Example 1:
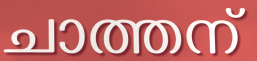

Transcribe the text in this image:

ചാത്തന്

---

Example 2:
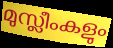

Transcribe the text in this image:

മുസ്ലീംകളും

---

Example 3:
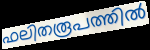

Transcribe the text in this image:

ഫലിതരൂപത്തിൽ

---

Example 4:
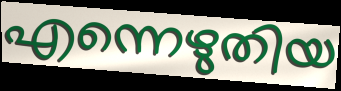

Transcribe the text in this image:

എന്നെഴുതിയ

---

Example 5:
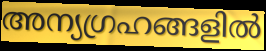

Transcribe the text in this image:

അന്യഗ്രഹങ്ങളിൽ